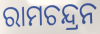
ରାମଚନ୍ଦ୍ରନ